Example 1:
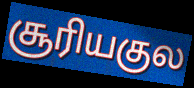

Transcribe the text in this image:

சூரியகுல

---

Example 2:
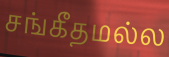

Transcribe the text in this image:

சங்கீதமல்ல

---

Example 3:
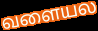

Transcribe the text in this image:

வளையல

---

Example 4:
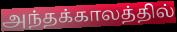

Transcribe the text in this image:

அந்தக்காலத்தில்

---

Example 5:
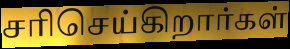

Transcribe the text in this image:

சரிசெய்கிறார்கள்